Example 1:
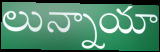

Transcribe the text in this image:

లున్నాయా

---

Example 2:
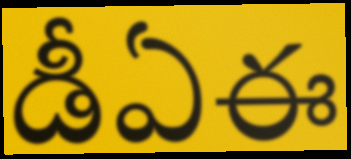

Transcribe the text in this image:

డీఏఈ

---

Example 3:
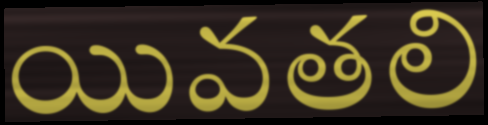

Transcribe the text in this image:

యివతలి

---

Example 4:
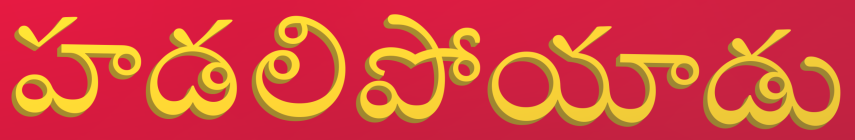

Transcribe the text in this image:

హడలిపోయాడు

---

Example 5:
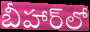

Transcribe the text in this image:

బీహార్‌లో